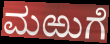
ಮಱುಗೆ